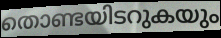
തൊണ്ടയിടറുകയും